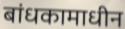
बांधकामाधीन